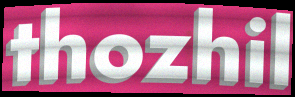
thozhil